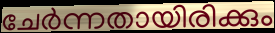
ചേർന്നതായിരിക്കും